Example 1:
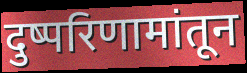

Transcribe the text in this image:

दुष्परिणामांतून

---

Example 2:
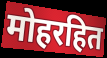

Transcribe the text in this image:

मोहरहित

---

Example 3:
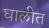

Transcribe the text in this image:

घालीत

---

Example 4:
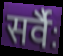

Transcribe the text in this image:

सर्वैः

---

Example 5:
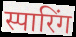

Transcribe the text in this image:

स्पारिंग